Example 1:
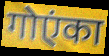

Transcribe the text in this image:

गोएंका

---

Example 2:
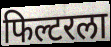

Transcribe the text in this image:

फिल्टरला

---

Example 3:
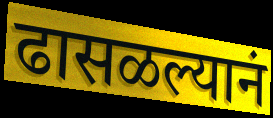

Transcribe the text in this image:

ढासळल्यानं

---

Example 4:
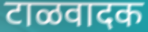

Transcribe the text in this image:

टाळवादक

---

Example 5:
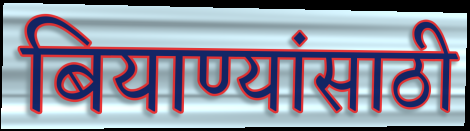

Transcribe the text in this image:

बियाण्यांसाठी